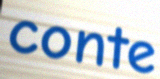
conte